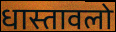
धास्तावलो